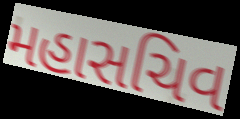
મહાસચિવ